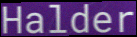
Halder